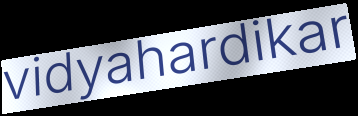
vidyahardikar